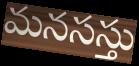
మనసస్తు